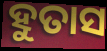
ହୁତାସ